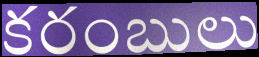
కరంబులు